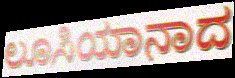
ಲೂಸಿಯಾನಾದ